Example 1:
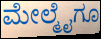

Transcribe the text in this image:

ಮೇಲ್ಮೈಗೂ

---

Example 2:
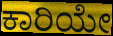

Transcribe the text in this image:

ಕಾರಿಯೇ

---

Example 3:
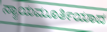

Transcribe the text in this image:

ನ್ಯಾಯಮೂರ್ತಿಯಾದ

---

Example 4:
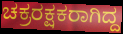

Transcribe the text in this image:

ಚಕ್ರರಕ್ಷಕರಾಗಿದ್ದ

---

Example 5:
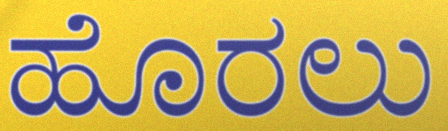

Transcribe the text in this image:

ಹೊರಲು